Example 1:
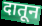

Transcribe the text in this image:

दातून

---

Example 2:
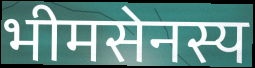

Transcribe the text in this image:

भीमसेनस्य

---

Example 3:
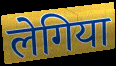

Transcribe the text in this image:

लेगिया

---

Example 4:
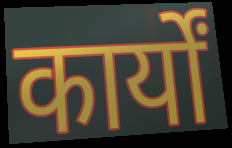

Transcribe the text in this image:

कार्यों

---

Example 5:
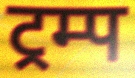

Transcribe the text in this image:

ट्रम्प